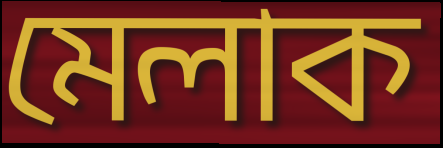
মেলাক